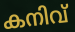
കനിവ്